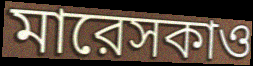
মারেসকাও